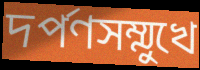
দর্পণসম্মুখে